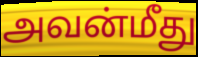
அவன்மீது